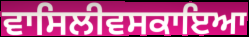
ਵਾਸਿਲੀਵਸਕਾਇਆ